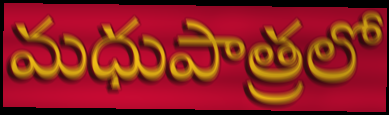
మధుపాత్రలో